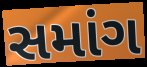
સમાંગ